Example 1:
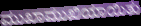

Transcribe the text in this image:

ಮುಖಾಮುಖಿಯಾಯಿತು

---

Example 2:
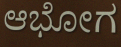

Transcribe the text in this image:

ಆಭೋಗ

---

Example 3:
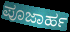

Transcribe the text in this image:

ಪೂಜಾರ್ಹ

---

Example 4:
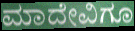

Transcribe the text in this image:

ಮಾದೇವಿಗೂ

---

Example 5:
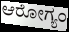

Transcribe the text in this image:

ಆರೋಗ್ಯಂ